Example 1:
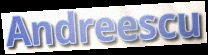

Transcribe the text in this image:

Andreescu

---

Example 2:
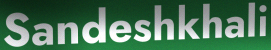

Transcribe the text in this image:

Sandeshkhali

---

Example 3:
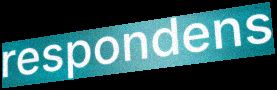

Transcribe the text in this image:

respondens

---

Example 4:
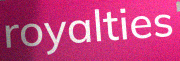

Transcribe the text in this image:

royalties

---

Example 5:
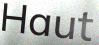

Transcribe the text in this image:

Haut